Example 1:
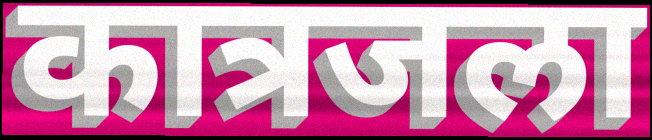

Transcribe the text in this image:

कात्रजला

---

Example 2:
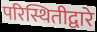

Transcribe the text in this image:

परिस्थितीद्वारे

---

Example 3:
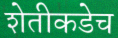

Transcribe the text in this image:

शेतीकडेच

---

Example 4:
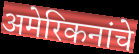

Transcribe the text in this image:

अमेरिकनांचे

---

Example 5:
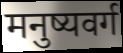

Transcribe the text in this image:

मनुष्यवर्ग